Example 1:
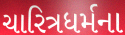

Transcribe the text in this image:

ચારિત્રધર્મના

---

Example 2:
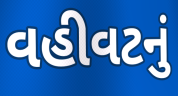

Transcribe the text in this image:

વહીવટનું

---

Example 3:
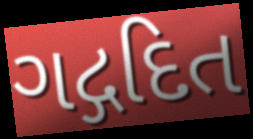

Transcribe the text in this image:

ગદ્ગદિત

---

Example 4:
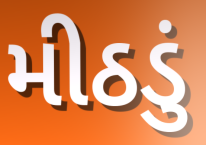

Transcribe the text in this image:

મીઠડું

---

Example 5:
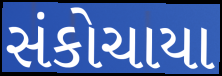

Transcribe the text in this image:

સંકોચાયા